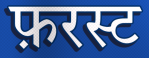
फ़रस्ट